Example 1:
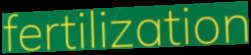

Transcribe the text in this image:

fertilization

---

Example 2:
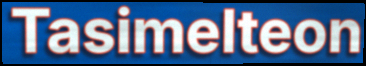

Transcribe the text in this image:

Tasimelteon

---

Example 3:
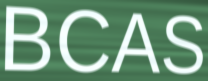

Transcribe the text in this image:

BCAS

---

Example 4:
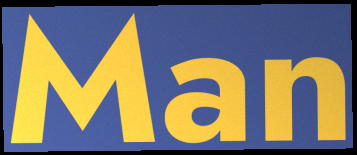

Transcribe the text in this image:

Man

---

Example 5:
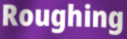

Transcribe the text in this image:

Roughing